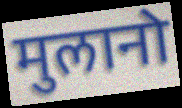
मुलानो